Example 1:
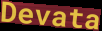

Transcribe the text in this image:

Devata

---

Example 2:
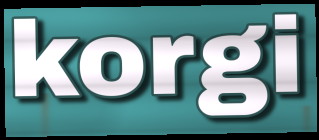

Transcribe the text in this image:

korgi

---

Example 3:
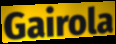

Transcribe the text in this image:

Gairola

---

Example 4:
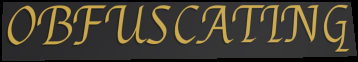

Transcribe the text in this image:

OBFUSCATING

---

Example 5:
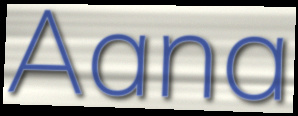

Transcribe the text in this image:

Aana